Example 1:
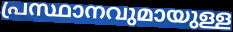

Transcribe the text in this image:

പ്രസ്ഥാനവുമായുള്ള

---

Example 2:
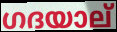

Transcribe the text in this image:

ഗദയാല്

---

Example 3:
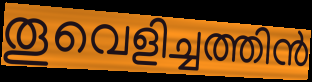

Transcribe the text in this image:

തൂവെളിച്ചത്തിൻ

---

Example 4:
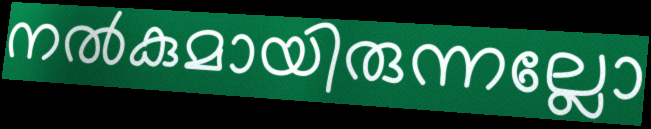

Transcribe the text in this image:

നൽകുമായിരുന്നല്ലോ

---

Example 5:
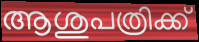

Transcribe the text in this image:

ആശുപത്രിക്ക്